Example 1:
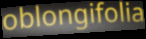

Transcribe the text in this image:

oblongifolia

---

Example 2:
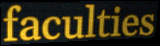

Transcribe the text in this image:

faculties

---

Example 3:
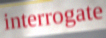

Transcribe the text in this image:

interrogate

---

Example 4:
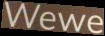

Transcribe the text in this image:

Wewe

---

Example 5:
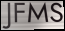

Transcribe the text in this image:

JFMS